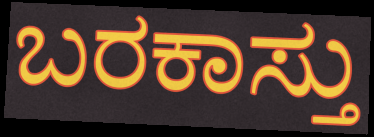
ಬರಕಾಸ್ತು